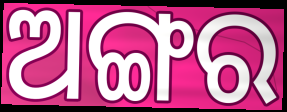
ଅଙ୍ଗର